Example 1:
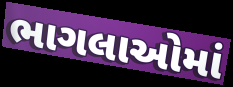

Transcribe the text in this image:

ભાગલાઓમાં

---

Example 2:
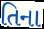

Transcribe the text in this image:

તિના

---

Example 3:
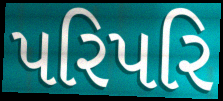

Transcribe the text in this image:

પરિપરિ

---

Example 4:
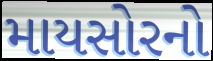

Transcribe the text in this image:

માયસોરનો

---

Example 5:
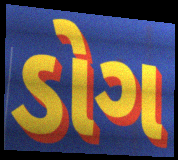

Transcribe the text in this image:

ડોગ